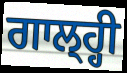
ਗਾਲ੍ਹ੍ਹੀ